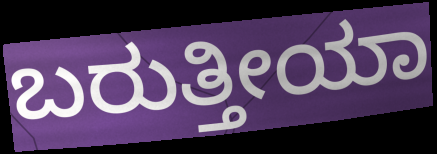
ಬರುತ್ತೀಯಾ